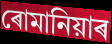
ৰোমানিয়াৰ